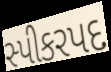
સ્પીકરપદ